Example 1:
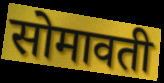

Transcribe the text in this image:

सोमावती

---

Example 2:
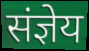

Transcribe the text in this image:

संज्ञेय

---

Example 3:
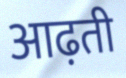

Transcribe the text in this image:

आढ़ती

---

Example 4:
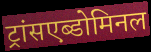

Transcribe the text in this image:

ट्रांसएब्डोमिनल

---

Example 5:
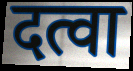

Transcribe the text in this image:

दत्वा